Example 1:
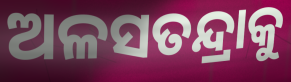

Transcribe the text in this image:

ଅଳସତନ୍ଦ୍ରାକୁ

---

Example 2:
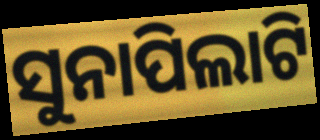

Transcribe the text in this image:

ସୁନାପିଲାଟି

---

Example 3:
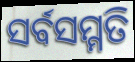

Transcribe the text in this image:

ସର୍ବସମ୍ମତି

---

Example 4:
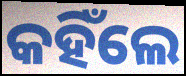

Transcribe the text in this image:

କହିଁଲେ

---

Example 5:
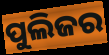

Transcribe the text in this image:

ପୁଲିଜର